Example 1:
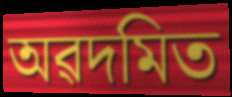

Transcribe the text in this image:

অৱদমিত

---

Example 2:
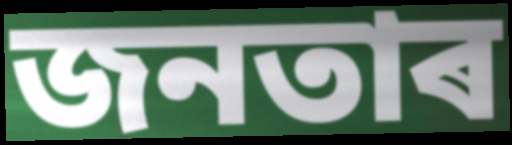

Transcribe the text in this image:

জনতাৰ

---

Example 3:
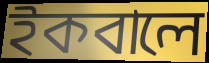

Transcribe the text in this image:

ইকবালে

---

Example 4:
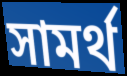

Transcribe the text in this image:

সামৰ্থ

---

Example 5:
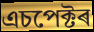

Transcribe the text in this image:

এচপেক্টৰ